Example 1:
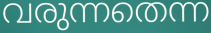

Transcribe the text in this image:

വരുന്നതെന്ന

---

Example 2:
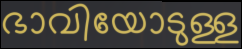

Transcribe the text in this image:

ഭാവിയോടുള്ള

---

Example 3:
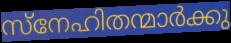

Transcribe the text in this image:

സ്നേഹിതന്മാർക്കു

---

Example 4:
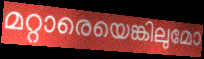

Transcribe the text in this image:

മറ്റാരെയെങ്കിലുമോ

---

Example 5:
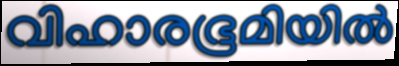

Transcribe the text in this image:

വിഹാരഭൂമിയിൽ